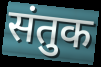
संतुक